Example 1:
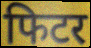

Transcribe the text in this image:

फिटर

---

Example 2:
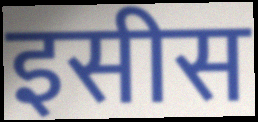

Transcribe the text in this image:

इसीस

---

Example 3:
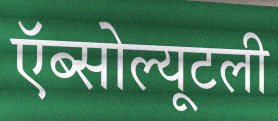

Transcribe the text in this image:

ऍब्सोल्यूटली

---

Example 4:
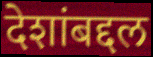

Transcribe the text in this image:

देशांबद्दल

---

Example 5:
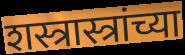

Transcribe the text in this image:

शस्त्रास्त्रांच्या